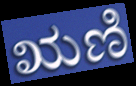
ಋಣಿ